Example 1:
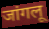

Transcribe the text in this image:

जांगलू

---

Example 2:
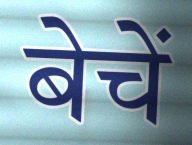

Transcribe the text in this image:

बेचें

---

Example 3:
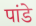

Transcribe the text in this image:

पांडे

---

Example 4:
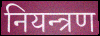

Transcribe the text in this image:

नियन्त्रण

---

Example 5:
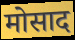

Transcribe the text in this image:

मोसाद